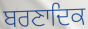
ਬਰਣਾਦਿਕ